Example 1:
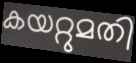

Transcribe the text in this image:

കയറ്റുമതി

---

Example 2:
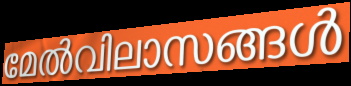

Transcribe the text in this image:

മേൽവിലാസങ്ങൾ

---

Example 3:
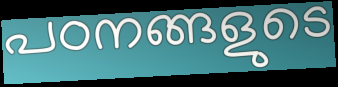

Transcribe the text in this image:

പഠനങ്ങളുടെ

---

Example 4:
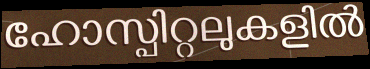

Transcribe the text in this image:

ഹോസ്പിറ്റലുകളിൽ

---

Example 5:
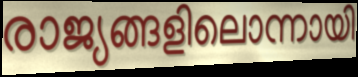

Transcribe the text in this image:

രാജ്യങ്ങളിലൊന്നായി